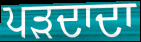
ਪੜਦਾਦਾ